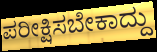
ಪರೀಕ್ಷಿಸಬೇಕಾದ್ದು